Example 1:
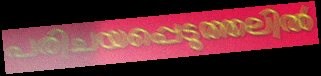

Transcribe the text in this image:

പരിചയപ്പെടുത്തലിൽ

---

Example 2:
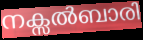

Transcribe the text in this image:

നക്സൽബാരി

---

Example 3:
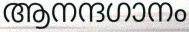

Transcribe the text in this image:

ആനന്ദഗാനം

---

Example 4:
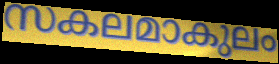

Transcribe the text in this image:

സകലമാകുലം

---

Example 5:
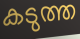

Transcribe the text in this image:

കടുത്ത